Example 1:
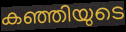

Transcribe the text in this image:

കഞ്ഞിയുടെ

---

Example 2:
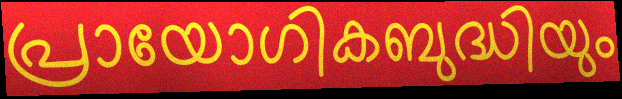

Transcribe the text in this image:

പ്രായോഗികബുദ്ധിയും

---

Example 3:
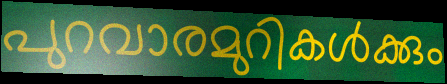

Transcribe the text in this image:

പുറവാരമുറികൾക്കും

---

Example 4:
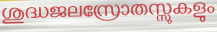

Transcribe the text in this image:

ശുദ്ധജലസ്രോതസ്സുകളും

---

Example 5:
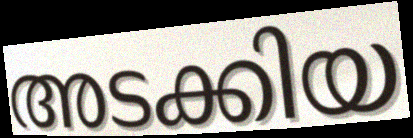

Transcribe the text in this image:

അടക്കിയ